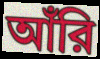
আঁরি